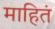
माहितं